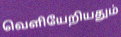
வெளியேறியதும்